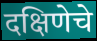
दक्षिणेचे